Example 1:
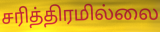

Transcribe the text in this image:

சரித்திரமில்லை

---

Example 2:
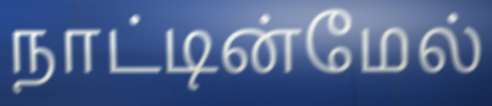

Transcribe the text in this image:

நாட்டின்மேல்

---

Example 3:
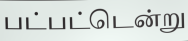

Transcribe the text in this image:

பட்பட்டென்று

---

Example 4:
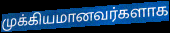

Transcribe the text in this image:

முக்கியமானவர்களாக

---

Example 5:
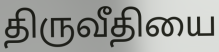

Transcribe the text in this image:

திருவீதியை